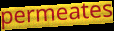
permeates